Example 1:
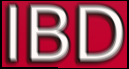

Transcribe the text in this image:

IBD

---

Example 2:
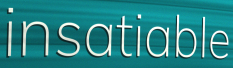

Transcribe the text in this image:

insatiable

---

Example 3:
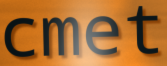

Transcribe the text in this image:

cmet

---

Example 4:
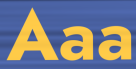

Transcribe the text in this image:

Aaa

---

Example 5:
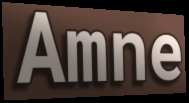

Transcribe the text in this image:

Amne